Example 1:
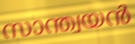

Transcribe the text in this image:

സാന്ത്വയൻ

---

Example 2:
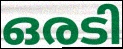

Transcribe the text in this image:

ഒരടി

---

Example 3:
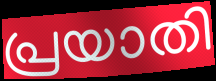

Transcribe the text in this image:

പ്രയാതി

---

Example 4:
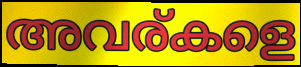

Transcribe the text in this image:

അവര്കളെ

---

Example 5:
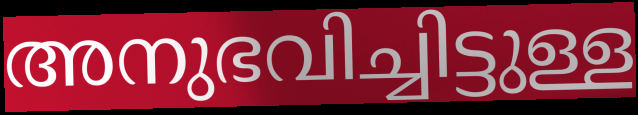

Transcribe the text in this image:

അനുഭവിച്ചിട്ടുള്ള